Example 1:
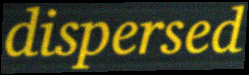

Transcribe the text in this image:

dispersed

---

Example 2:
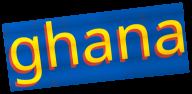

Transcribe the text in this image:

ghana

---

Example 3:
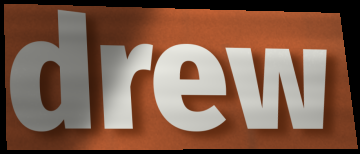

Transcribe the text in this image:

drew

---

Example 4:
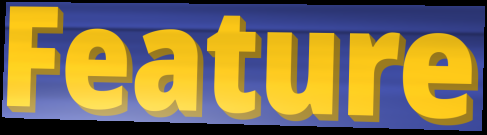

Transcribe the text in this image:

Feature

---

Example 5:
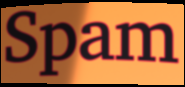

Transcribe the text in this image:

Spam